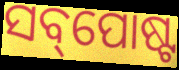
ସବ୍‌ପୋଷ୍ଟ